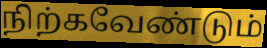
நிற்கவேண்டும்